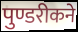
पुण्डरीकने